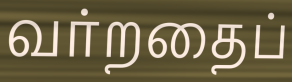
வர்றதைப்